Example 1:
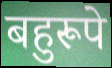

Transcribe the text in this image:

बहुरूपे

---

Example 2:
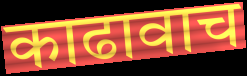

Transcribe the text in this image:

काढावाच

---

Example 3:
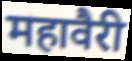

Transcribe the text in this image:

महावैरी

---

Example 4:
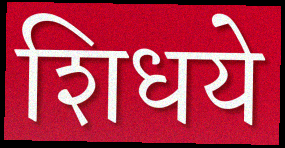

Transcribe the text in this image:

शिधये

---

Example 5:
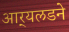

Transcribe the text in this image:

आर्यलडने